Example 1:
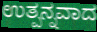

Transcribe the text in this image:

ಉತ್ಪನ್ನವಾದ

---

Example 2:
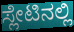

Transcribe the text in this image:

ಸ್ಲೇಟಿನಲ್ಲಿ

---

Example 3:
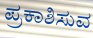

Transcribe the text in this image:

ಪ್ರಕಾಶಿಸುವ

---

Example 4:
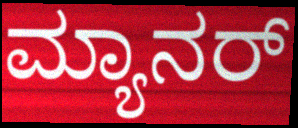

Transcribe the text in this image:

ಮ್ಯಾನರ್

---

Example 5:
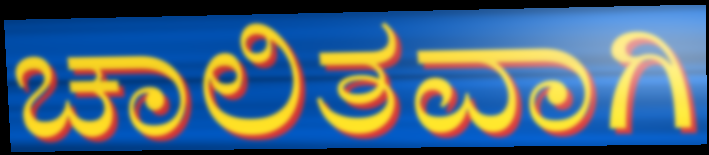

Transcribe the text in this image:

ಚಾಲಿತವಾಗಿ